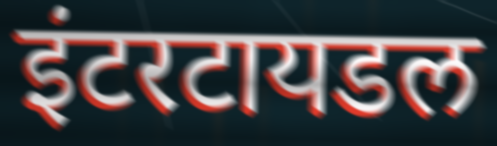
इंटरटायडल